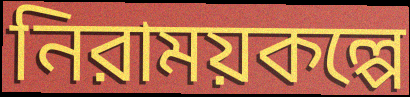
নিরাময়কল্পে